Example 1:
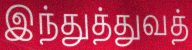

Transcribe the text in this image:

இந்துத்துவத்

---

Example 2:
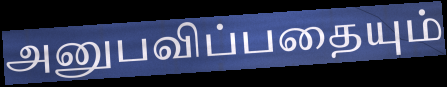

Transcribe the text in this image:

அனுபவிப்பதையும்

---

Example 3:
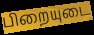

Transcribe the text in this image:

பிறையுடை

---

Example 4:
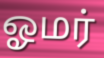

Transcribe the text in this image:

ஓமர்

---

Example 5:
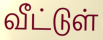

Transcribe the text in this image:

வீட்டுள்